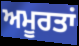
ਅਮੂਰਤਾਂ